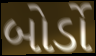
બોર્ડો